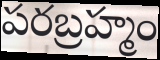
పరబ్రహ్మం